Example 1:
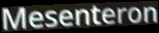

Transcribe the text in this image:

Mesenteron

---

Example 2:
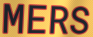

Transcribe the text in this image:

MERS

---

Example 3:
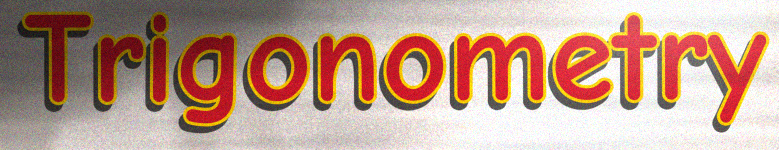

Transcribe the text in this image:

Trigonometry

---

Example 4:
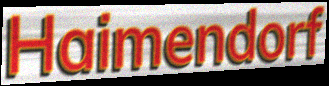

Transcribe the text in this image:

Haimendorf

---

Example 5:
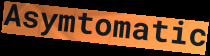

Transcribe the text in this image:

Asymtomatic